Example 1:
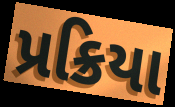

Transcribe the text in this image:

પ્રક્રિયા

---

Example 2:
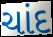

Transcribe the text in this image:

ચાંદ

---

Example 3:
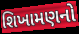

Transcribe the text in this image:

શિખામણનો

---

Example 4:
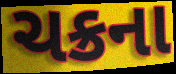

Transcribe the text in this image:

ચક્રના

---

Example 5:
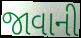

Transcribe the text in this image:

જાવાની